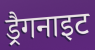
ड्रैगनाइट